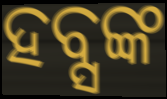
ହବ୍ସଙ୍କ